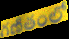
గణితంలో